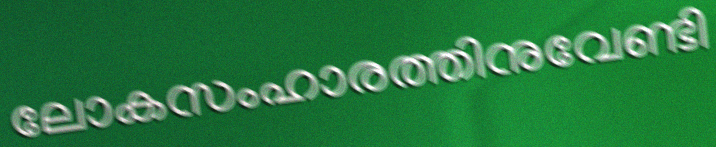
ലോകസംഹാരത്തിനുവേണ്ടി